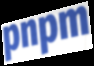
pnpm